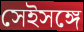
সেইসঙ্গে